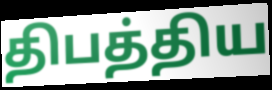
திபத்திய